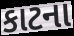
કાટના